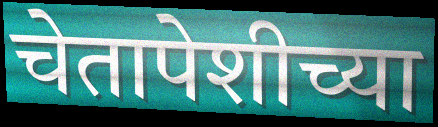
चेतापेशीच्या